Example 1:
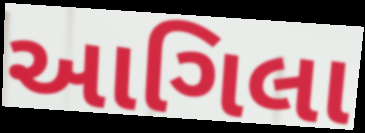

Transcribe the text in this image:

આગિલા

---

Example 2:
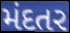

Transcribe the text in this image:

મંદતર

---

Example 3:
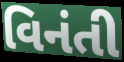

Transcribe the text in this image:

વિનંતી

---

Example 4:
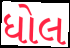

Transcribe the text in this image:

ધોલ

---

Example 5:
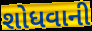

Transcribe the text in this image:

શોધવાની